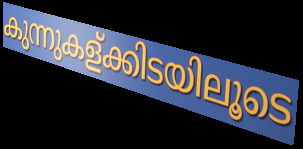
കുന്നുകള്ക്കിടയിലൂടെ